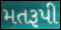
મતરૂપી